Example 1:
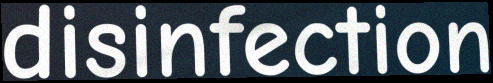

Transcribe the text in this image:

disinfection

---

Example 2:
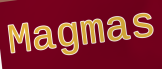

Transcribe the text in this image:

Magmas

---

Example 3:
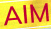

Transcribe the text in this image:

AIM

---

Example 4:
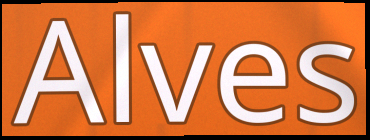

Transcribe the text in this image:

Alves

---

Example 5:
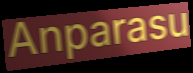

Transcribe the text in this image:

Anparasu